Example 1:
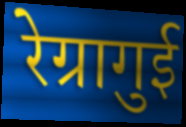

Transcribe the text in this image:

रेग्रागुई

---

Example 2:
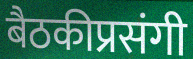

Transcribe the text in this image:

बैठकीप्रसंगी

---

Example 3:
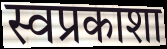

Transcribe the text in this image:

स्वप्रकाशा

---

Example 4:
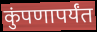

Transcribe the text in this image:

कुंपणापर्यंत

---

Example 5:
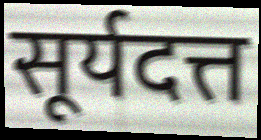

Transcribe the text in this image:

सूर्यदत्त